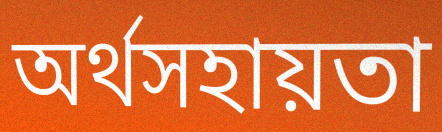
অর্থসহায়তা